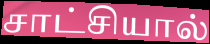
சாட்சியால்